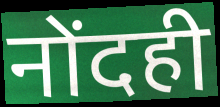
नोंदही